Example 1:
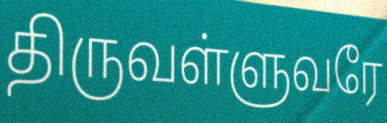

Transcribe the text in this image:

திருவள்ளுவரே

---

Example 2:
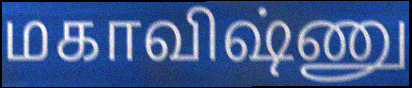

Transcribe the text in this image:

மகாவிஷ்ணு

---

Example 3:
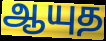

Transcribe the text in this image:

ஆயுத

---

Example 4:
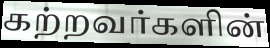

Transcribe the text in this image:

கற்றவர்களின்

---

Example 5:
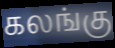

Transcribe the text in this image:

கலங்கு